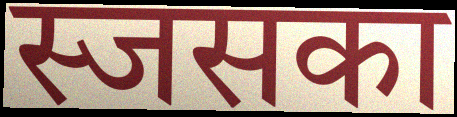
स्जसका